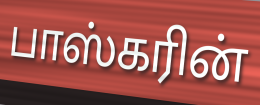
பாஸ்கரின்